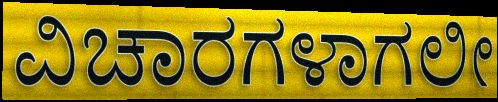
ವಿಚಾರಗಳಾಗಲೀ